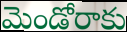
మెండోరాకు